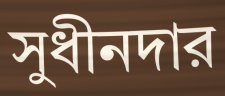
সুধীনদার